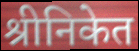
श्रीनिकेत